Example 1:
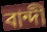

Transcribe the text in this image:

বান্দী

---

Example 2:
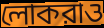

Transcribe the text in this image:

লোকরাও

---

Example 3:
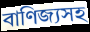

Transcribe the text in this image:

বাণিজ্যসহ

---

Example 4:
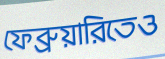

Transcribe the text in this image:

ফেব্রুয়ারিতেও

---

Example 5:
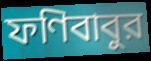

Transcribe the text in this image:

ফণিবাবুর